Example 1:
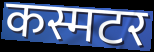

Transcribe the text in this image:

कस्मटर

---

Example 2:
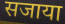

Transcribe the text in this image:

सजाया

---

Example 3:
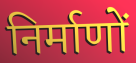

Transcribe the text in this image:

निर्माणों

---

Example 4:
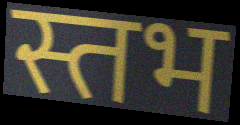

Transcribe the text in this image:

स्तभ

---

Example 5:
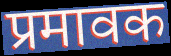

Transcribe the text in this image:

प्रमावक